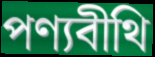
পণ্যবীথি